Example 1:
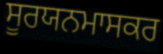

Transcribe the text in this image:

ਸੂਰਯਨਮਾਸਕਰ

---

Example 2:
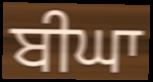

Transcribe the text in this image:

ਬੀਘਾ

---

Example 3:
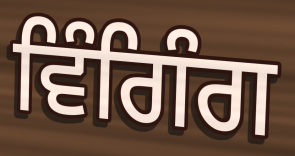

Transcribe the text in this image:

ਵਿੰਗਿੰਗ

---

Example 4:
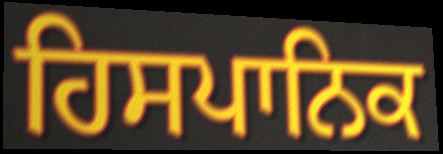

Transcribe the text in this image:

ਹਿਸਪਾਨਿਕ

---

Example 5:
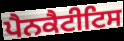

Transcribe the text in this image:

ਪੈਨਕੈਟੀਟਿਸ